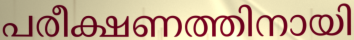
പരീക്ഷണത്തിനായി